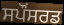
ਸਪੌਂਸਰਡ